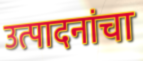
उत्पादनांचा